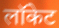
लॉकेट